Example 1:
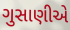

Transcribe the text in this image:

ગુસાણીએ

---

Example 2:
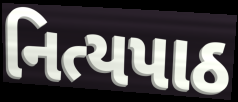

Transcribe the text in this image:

નિત્યપાઠ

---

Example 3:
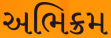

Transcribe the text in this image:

અભિક્રમ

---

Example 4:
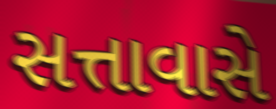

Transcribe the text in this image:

સત્તાવાસે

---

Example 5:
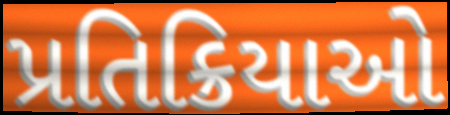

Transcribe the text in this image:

પ્રતિક્રિયાઓ